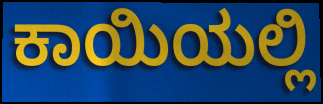
ಕಾಯಿಯಲ್ಲಿ